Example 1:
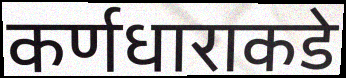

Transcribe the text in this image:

कर्णधाराकडे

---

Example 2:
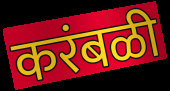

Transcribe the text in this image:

करंबळी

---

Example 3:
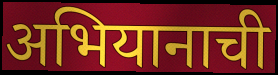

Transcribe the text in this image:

अभियानाची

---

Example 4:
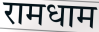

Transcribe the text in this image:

रामधाम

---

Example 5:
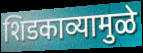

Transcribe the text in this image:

शिडकाव्यामुळे